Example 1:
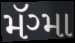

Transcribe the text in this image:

મૅગ્મા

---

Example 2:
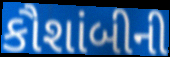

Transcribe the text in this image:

કૌશાંબીની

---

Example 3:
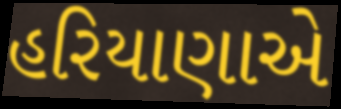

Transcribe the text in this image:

હરિયાણાએ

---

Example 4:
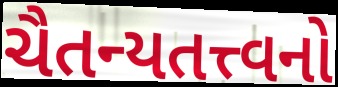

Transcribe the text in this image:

ચૈતન્યતત્ત્વનો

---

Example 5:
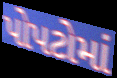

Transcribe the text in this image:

પોપટોમાં